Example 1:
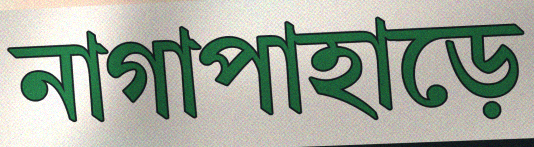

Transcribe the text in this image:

নাগাপাহাড়ে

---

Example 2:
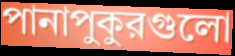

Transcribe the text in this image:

পানাপুকুরগুলো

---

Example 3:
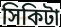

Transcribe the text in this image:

সিকিটা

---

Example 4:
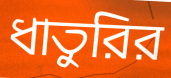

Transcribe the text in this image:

ধাতুরির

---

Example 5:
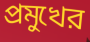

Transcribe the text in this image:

প্রমুখের